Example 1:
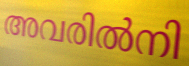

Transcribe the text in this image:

അവരിൽനി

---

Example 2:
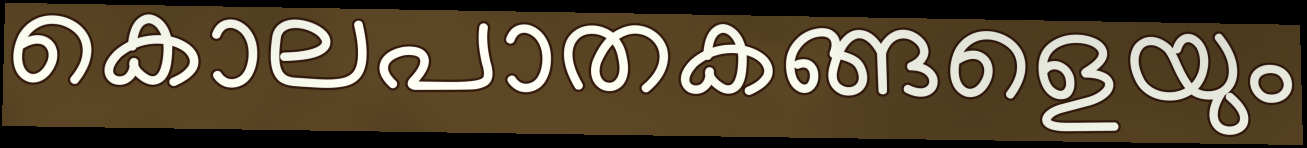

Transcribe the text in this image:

കൊലപാതകങ്ങളെയും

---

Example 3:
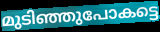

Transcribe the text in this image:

മുടിഞ്ഞുപോകട്ടെ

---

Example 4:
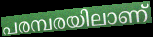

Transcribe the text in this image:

പരമ്പരയിലാണ്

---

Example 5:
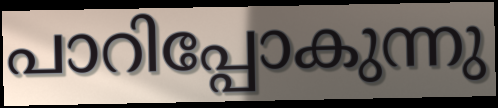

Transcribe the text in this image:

പാറിപ്പോകുന്നു